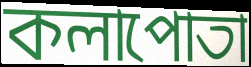
কলাপোতা